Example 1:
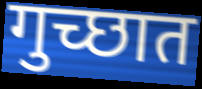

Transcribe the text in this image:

गुच्छात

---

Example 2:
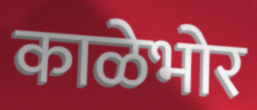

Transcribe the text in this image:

काळेभोर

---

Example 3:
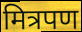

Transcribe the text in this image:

मित्रपण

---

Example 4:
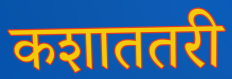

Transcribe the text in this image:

कशाततरी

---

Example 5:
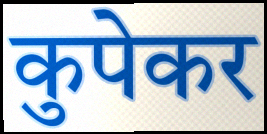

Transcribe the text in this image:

कुपेकर